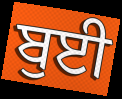
ਬੁਈ